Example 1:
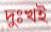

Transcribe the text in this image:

দুঃখই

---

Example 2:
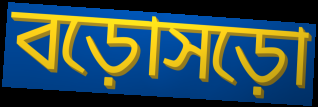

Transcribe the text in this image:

বড়োসড়ো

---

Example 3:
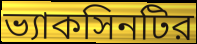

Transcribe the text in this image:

ভ্যাকসিনটির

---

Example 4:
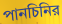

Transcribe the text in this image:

পানচিনির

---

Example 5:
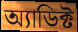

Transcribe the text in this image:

অ্যাডিক্ট